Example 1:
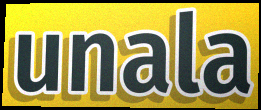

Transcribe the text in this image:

unala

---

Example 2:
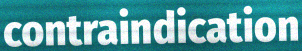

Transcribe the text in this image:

contraindication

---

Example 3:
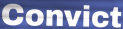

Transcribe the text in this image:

Convict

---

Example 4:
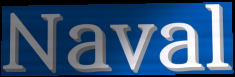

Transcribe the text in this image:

Naval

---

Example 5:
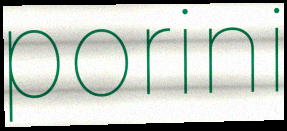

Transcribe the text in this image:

porini